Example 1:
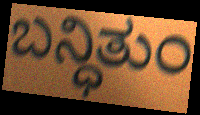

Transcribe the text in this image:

ಬನ್ಧಿತುಂ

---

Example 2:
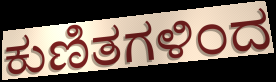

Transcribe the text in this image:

ಕುಣಿತಗಳಿಂದ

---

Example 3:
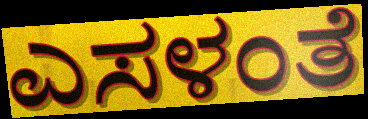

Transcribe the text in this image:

ಎಸಳಂತೆ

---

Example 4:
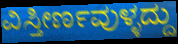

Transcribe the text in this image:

ವಿಸ್ತೀರ್ಣವುಳ್ಳದ್ದು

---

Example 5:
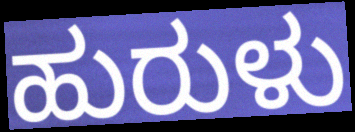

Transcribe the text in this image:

ಹುರುಳು